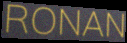
RONAN